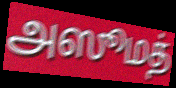
அஸூமத்